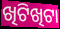
ଖିଟିଖିଟା